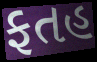
ફતહ